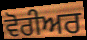
ਵੋਰੀਅਰ